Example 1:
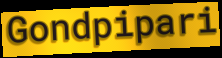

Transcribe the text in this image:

Gondpipari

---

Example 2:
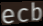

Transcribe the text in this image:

ecb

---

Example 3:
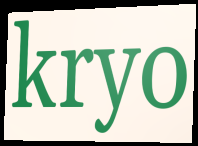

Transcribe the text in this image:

kryo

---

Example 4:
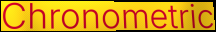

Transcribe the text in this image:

Chronometric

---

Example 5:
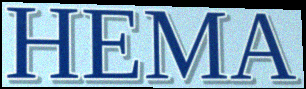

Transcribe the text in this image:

HEMA